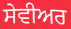
ਸੇਵੀਅਰ